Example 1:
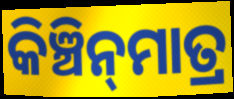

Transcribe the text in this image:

କିଞ୍ଚିନ୍‍ମାତ୍ର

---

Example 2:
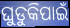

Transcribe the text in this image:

ଘୁଡୁକିପାଇଁ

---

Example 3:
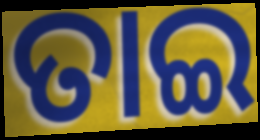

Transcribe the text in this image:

ତାଇ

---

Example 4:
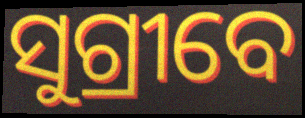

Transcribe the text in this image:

ସୁଗ୍ରୀବେ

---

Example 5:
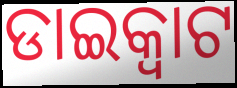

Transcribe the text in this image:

ଡାଇକ୍ଵାଟ